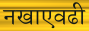
नखाएवढी